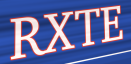
RXTE